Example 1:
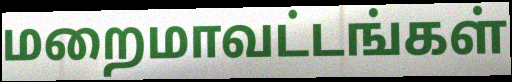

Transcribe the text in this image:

மறைமாவட்டங்கள்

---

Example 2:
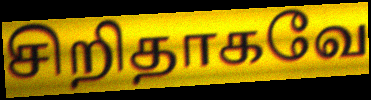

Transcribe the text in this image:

சிறிதாகவே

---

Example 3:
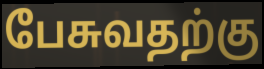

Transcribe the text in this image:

பேசுவதற்கு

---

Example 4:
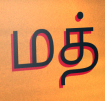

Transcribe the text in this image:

மத்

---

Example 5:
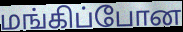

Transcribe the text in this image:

மங்கிப்போன